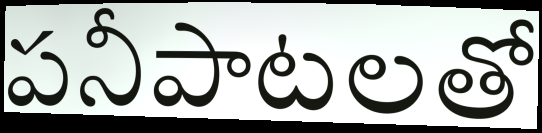
పనీపాటలతో